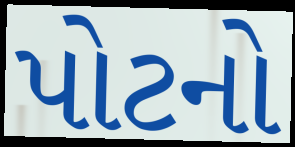
પોટનો